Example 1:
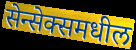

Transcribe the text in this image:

सेन्सेक्समधील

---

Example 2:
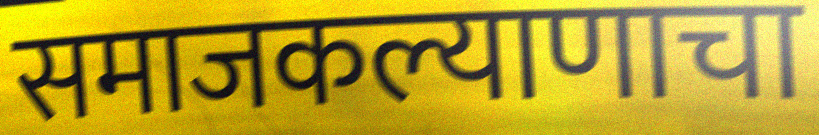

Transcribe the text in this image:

समाजकल्याणाचा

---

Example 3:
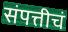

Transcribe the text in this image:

संपत्तीचं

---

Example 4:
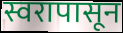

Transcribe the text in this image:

स्वरापासून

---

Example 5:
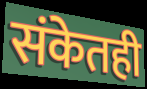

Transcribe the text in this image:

संकेतही